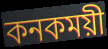
কনকময়ী